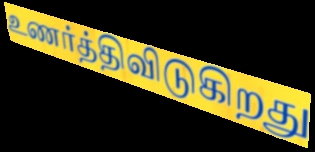
உணர்த்திவிடுகிறது